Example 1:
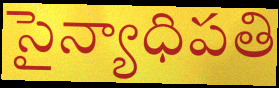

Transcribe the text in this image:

సైన్యాధిపతి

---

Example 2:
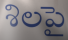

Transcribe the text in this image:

శిలపై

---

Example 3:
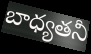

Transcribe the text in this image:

బాధ్యతనీ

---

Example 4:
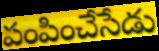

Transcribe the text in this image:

పంపించేసేడు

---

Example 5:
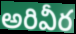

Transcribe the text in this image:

అరివీర